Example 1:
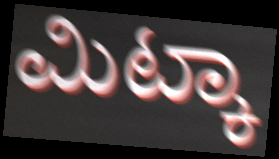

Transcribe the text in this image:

ಮಿಟ್ಕಾ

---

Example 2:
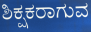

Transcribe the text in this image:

ಶಿಕ್ಷಕರಾಗುವ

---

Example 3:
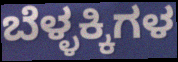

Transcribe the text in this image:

ಬೆಳ್ಳಕ್ಕಿಗಳ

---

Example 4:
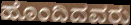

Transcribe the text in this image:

ಹೊಂದಿದವರು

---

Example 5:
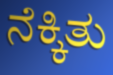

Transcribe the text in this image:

ನೆಕ್ಕಿತು